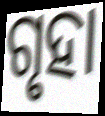
ଗୃହା